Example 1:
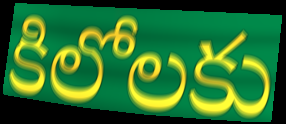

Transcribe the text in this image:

కిలోలకు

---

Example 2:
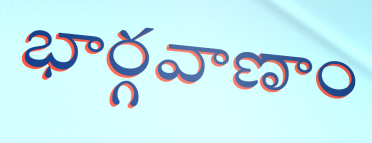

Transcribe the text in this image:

భార్గవాణాం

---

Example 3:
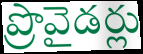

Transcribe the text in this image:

ప్రొవైడర్లు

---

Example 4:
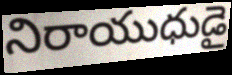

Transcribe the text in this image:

నిరాయుధుడై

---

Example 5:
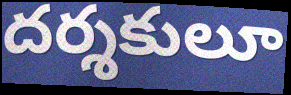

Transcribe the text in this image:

దర్శకులూ